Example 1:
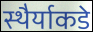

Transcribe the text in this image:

स्थैर्याकडे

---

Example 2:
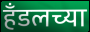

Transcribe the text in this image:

हॅंडलच्या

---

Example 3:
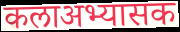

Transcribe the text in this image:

कलाअभ्यासक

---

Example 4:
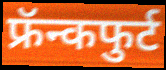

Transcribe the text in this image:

फ्रॅन्कफुर्ट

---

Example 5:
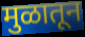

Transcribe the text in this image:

मुळातून